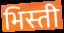
भिस्ती